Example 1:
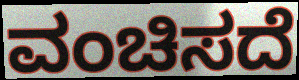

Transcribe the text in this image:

ವಂಚಿಸದೆ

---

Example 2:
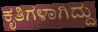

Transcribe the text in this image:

ಕೃತಿಗಳಾಗಿದ್ದು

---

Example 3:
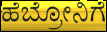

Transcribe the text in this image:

ಹೆಬ್ರೋನಿಗೆ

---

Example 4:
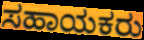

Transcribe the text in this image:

ಸಹಾಯಕರು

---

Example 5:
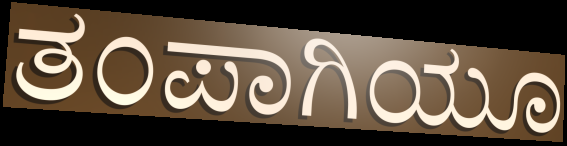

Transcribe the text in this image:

ತಂಪಾಗಿಯೂ